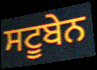
ਸਟੂਬੇਨ